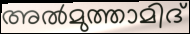
അൽമുത്താമിദ്